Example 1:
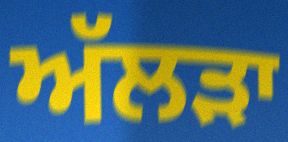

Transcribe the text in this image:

ਅੱਲੜਾ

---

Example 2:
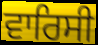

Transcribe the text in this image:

ਵਾਰਿਸੀ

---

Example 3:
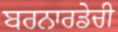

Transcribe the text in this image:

ਬਰਨਾਰਡੇਚੀ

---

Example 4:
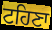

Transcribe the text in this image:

ਟਹਿਣਾ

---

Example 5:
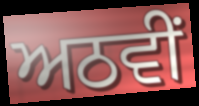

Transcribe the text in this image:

ਅਠਵੀਂ